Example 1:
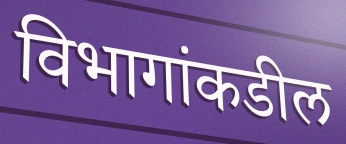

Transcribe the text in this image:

विभागांकडील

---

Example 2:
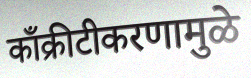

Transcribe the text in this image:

काँक्रीटीकरणामुळे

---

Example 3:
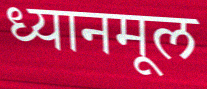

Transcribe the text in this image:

ध्यानमूल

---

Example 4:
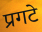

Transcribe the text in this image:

प्रगटे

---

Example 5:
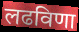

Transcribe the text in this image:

लढविणा